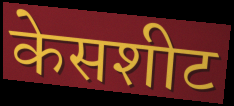
केसशीट